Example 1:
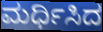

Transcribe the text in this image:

ಮರ್ಧಿಸಿದ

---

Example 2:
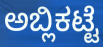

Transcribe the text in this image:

ಅಬ್ಲಿಕಟ್ಟೆ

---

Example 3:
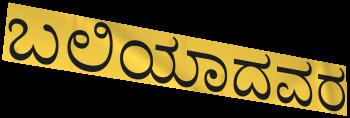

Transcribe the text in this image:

ಬಲಿಯಾದವರ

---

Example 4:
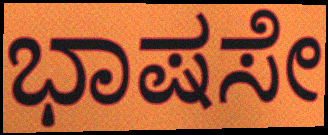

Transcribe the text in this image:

ಭಾಷಸೇ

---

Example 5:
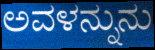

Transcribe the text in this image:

ಅವಳನ್ನುನು